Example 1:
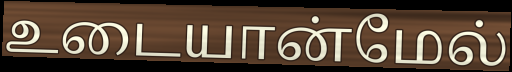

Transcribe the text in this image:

உடையான்மேல்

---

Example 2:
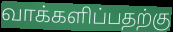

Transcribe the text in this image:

வாக்களிப்பதற்கு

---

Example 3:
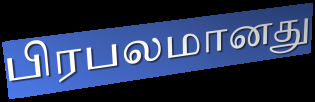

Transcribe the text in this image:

பிரபலமானது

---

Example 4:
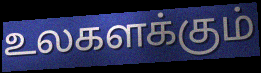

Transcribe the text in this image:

உலகளக்கும்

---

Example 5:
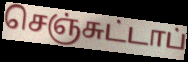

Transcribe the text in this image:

செஞ்சுட்டாப்